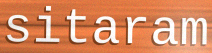
sitaram